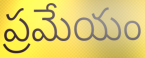
ప్రమేయం